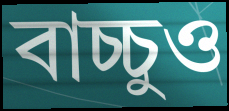
বাচ্চুও